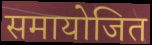
समायोजित